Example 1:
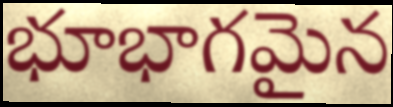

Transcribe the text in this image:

భూభాగమైన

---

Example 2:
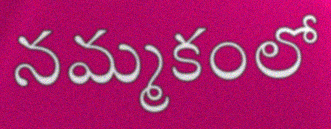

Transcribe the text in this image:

నమ్మకంలో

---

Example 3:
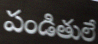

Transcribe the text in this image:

పండితులే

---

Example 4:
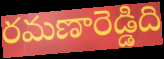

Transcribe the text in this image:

రమణారెడ్డిది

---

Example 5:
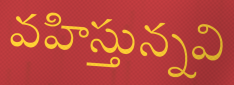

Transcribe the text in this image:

వహిస్తున్నవి